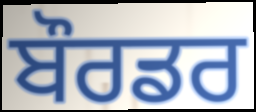
ਬੌਰਡਰ